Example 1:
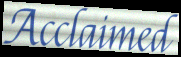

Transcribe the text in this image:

Acclaimed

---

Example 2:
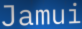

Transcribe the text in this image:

Jamui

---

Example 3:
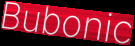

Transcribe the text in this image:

Bubonic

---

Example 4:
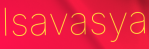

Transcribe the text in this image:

Isavasya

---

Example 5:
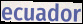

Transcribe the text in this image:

ecuador